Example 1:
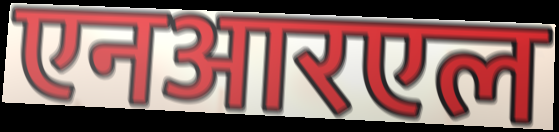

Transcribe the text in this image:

एनआरएल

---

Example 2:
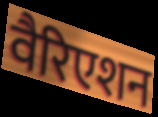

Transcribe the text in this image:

वैरिएशन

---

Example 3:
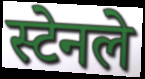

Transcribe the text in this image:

स्टेनले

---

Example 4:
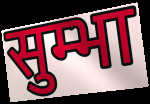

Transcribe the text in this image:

सुम्भा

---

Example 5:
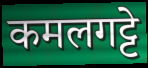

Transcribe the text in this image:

कमलगट्टे